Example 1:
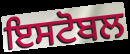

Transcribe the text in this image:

ਇਸਟੋਬਲ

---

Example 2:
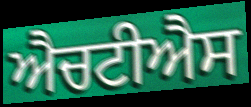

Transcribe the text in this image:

ਐਚਟੀਐਸ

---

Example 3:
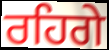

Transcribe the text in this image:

ਰਹਿਗੇ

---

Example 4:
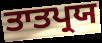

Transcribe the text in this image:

ਤਾਤਪ੍ਰਯ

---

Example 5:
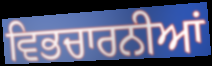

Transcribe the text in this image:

ਵਿਭਚਾਰਨੀਆਂ